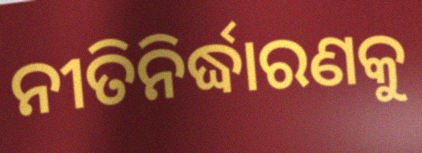
ନୀତିନିର୍ଦ୍ଧାରଣକୁ